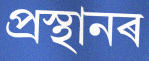
প্ৰস্থানৰ